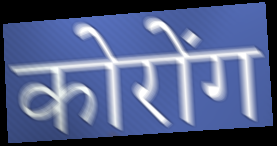
कोरोंग